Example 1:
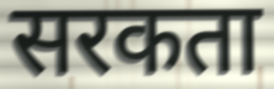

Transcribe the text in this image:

सरकता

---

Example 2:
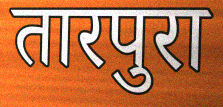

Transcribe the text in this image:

तारपुरा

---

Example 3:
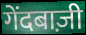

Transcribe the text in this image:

गेंदबाज़ी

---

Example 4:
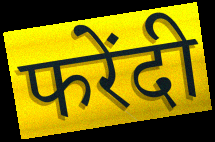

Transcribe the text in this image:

फरेंदी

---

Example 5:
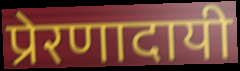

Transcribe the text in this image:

प्रेरणादायी